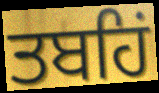
ਤਬਹਿਂ